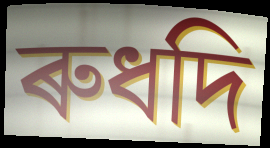
ৰুধদি